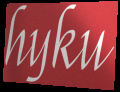
hyku